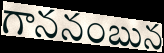
గాననంబున